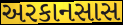
અરકાનસાસ